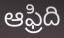
ఆఫ్రిది